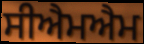
ਸੀਐਮਐਮ